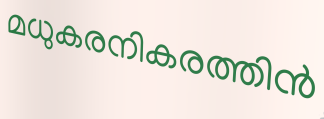
മധുകരനികരത്തിൻ